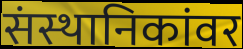
संस्थानिकांवर